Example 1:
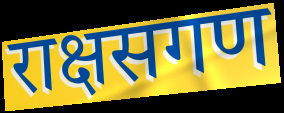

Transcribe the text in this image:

राक्षसगण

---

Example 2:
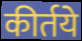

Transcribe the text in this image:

कीर्तये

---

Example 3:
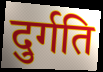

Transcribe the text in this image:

दुर्गति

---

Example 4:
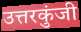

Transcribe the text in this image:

उत्तरकुंजी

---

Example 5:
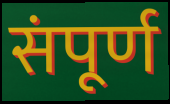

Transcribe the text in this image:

संपूर्ण